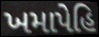
ખમાપેહિ